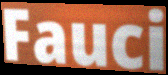
Fauci